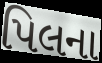
પિલના